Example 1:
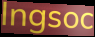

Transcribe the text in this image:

Ingsoc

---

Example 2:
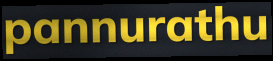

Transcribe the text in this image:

pannurathu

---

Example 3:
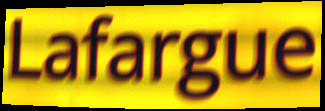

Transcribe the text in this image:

Lafargue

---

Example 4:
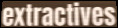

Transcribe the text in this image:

extractives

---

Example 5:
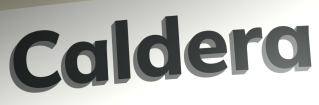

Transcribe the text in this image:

Caldera